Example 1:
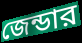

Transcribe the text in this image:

জেন্ডার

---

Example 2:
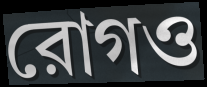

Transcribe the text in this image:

রোগও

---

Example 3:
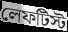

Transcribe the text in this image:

লেফটিস্ট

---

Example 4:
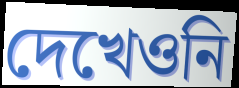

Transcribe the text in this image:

দেখেওনি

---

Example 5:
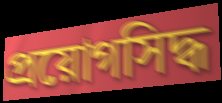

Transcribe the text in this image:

প্রয়োগসিদ্ধ